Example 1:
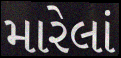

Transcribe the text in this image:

મારેલાં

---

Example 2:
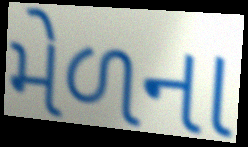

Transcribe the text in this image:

મેળના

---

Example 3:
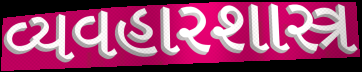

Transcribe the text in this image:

વ્યવહારશાસ્ત્ર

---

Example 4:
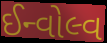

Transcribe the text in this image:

ઈન્વોલ્વ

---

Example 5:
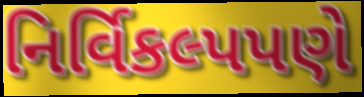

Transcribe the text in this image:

નિર્વિકલ્પપણે